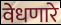
वेधणारे